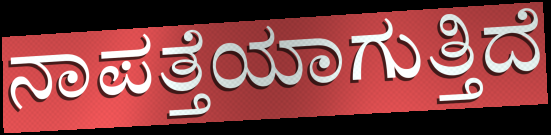
ನಾಪತ್ತೆಯಾಗುತ್ತಿದೆ